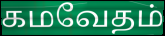
கமவேதம்